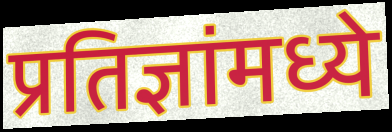
प्रतिज्ञांमध्ये